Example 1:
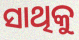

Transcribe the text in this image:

ସାଥିକୁ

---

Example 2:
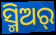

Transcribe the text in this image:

ସ୍ମିଅର୍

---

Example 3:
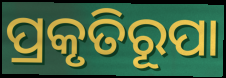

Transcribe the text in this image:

ପ୍ରକୃତିରୂପା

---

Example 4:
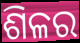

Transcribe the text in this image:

ଶିଳର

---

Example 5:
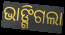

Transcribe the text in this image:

ଭାଙ୍ଗିଗଲା